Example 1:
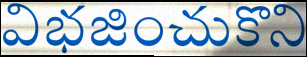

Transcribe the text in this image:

విభజించుకొని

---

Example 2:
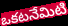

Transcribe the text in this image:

ఒకటనేమిటి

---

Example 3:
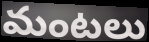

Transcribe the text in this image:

మంటలు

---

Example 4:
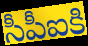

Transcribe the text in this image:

సీపీఐకి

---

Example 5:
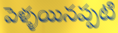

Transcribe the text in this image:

పెళ్ళయినప్పటి